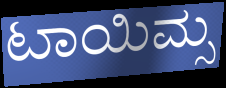
ಟಾಯಿಮ್ಸ